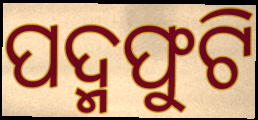
ପଦ୍ମଫୁଟି